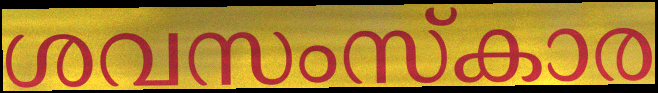
ശവസംസ്കാര